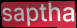
saptha